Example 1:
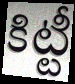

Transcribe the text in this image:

కిట్టీ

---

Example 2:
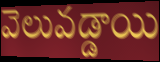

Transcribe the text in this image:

వెలువడ్డాయి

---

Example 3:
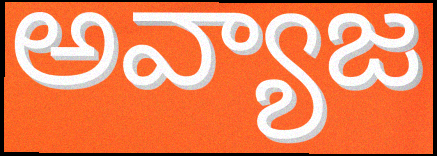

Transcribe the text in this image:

అవ్యాజ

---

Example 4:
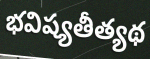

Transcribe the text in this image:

భవిష్యతీత్యథ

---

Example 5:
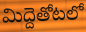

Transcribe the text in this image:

మిద్దెతోటలో